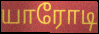
யாரோடி